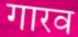
गारव